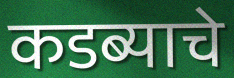
कडब्याचे